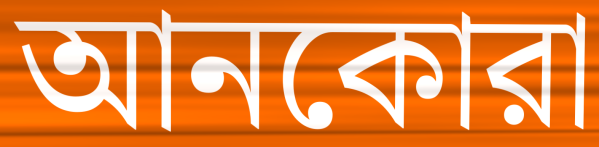
আনকোরা